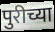
पुरीच्या